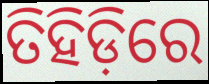
ତିହିଡ଼ିରେ